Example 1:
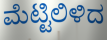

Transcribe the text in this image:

ಮೆಟ್ಟಿಲಿಳಿದ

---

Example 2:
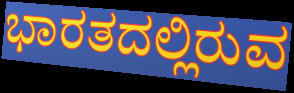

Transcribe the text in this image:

ಭಾರತದಲ್ಲಿರುವ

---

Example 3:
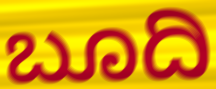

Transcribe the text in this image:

ಬೂದಿ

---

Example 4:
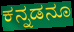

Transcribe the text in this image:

ಕನ್ನಡನೂ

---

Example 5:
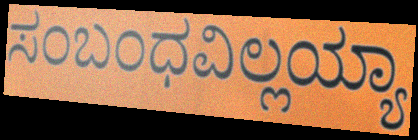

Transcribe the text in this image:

ಸಂಬಂಧವಿಲ್ಲಯ್ಯಾ